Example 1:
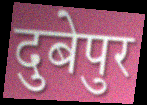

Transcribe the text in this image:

दुबेपुर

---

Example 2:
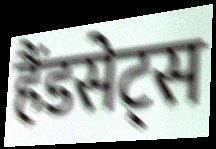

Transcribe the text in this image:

हैंडसेट्स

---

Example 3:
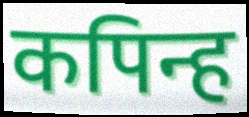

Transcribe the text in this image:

कपिन्ह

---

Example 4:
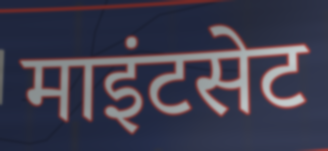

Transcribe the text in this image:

माइंटसेट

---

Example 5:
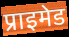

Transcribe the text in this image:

प्राइमेड